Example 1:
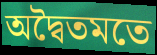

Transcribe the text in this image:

অদ্বৈতমতে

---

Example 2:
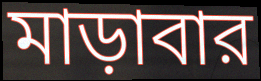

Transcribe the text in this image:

মাড়াবার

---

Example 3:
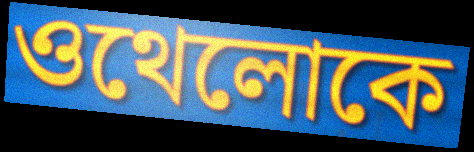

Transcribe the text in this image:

ওথেলোকে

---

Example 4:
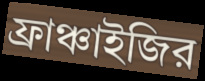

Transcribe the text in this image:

ফ্রাঞ্চাইজির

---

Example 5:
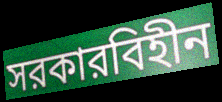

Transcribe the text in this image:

সরকারবিহীন